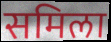
समिला